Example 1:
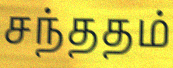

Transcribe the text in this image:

சந்ததம்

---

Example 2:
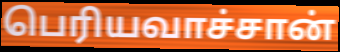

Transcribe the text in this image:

பெரியவாச்சான்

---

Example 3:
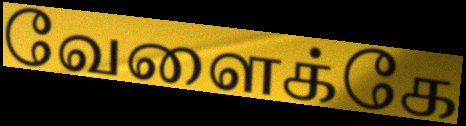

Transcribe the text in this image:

வேளைக்கே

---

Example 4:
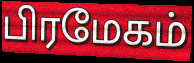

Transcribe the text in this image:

பிரமேகம்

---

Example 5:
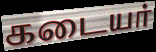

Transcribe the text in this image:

கடையர்